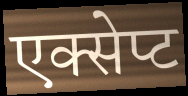
एक्सेप्ट